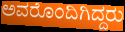
ಅವರೊಂದಿಗಿದ್ದರು